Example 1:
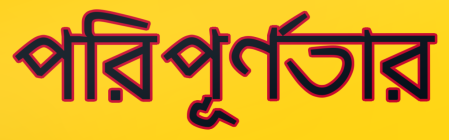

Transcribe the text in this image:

পরিপূর্ণতার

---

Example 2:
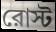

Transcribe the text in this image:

রোস্ট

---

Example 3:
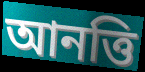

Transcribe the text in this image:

আনত্তি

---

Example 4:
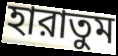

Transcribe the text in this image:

হারাতুম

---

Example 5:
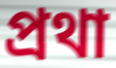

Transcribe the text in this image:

প্রথা